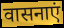
वासनाएं